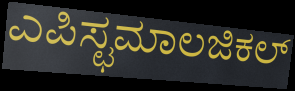
ಎಪಿಸ್ಟಮಾಲಜಿಕಲ್